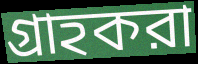
গ্রাহকরা